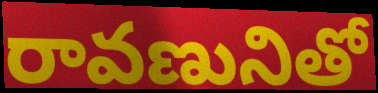
రావణునితో